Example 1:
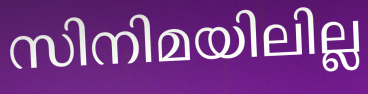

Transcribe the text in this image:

സിനിമയിലില്ല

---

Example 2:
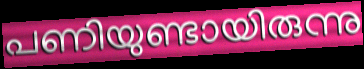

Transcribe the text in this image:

പണിയുണ്ടായിരുന്നു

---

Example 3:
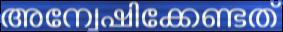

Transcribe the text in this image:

അന്വേഷിക്കേണ്ടത്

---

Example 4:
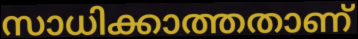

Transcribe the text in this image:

സാധിക്കാത്തതാണ്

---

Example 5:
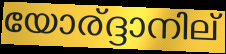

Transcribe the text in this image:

യോര്ദ്ദാനില്